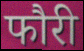
फौरी